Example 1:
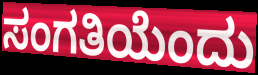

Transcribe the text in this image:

ಸಂಗತಿಯೆಂದು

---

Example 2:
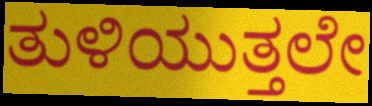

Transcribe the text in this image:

ತುಳಿಯುತ್ತಲೇ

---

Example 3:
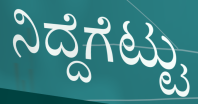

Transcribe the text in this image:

ನಿದ್ದೆಗೆಟ್ಟು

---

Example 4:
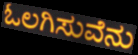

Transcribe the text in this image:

ಓಲಗಿಸುವೆನು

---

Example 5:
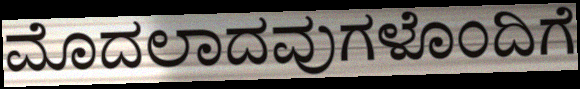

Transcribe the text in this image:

ಮೊದಲಾದವುಗಳೊಂದಿಗೆ